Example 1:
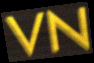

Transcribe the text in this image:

VN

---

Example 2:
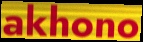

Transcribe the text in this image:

akhono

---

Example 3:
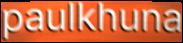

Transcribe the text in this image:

paulkhuna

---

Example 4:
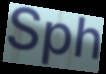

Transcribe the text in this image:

Sph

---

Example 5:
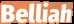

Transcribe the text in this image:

Belliah